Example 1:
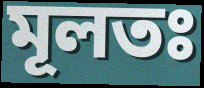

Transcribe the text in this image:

মূলতঃ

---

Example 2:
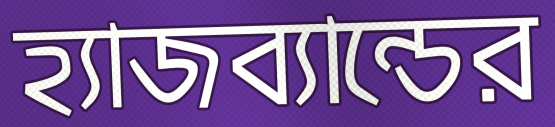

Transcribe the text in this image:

হ্যাজব্যান্ডের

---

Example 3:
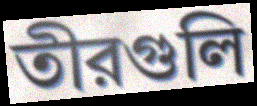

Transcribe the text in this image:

তীরগুলি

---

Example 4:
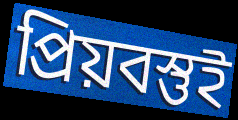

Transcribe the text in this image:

প্রিয়বস্তুই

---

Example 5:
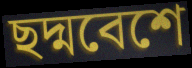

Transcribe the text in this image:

ছদ্মবেশে